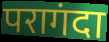
परागंदा